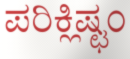
ಪರಿಕ್ಲಿಷ್ಟಂ